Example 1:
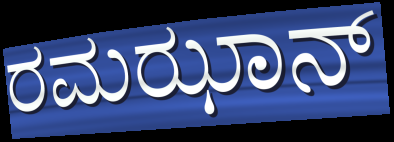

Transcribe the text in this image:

ರಮಝಾನ್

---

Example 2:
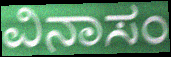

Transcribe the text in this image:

ವಿನಾಸಂ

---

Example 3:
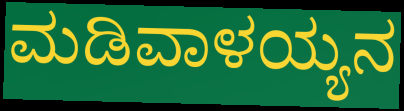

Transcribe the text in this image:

ಮಡಿವಾಳಯ್ಯನ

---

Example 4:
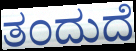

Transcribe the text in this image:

ತಂದುದೆ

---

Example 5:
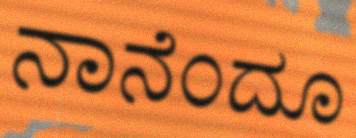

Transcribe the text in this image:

ನಾನೆಂದೂ